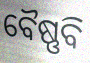
ବୈଷ୍ଣବି